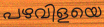
പഴവിളയെ